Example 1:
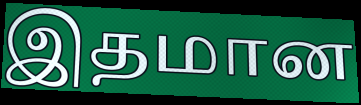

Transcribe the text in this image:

இதமான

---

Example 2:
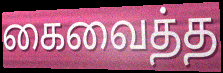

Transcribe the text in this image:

கைவைத்த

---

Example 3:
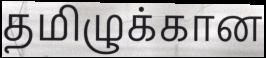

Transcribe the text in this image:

தமிழுக்கான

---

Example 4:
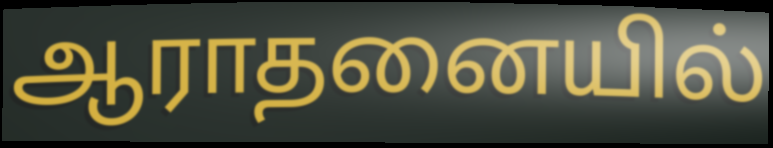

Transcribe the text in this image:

ஆராதனையில்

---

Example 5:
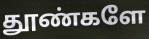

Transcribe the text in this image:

தூண்களே